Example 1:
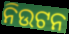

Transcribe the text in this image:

ନିଉଟନ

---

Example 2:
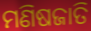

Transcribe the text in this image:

ମଣିଷଜାତି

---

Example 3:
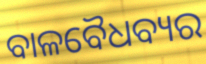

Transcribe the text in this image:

ବାଳବୈଧବ୍ୟର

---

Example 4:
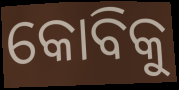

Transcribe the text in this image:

କୋବିକୁ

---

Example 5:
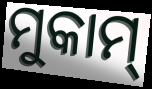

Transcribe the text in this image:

ମୁକାମ୍